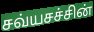
சவ்யசச்சின்